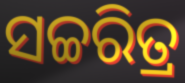
ସଚ୍ଚରିତ୍ର